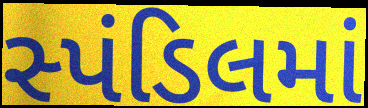
સ્પંડિલમાં